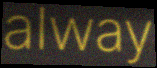
alway